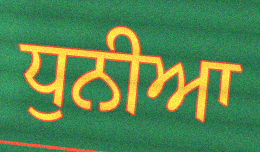
ਧੁਨੀਆ